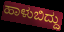
ಹಾಳುಬಿದ್ದು